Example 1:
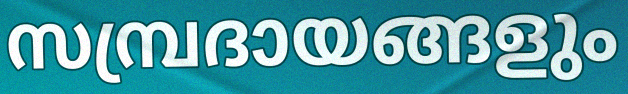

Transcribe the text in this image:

സമ്പ്രദായങ്ങളും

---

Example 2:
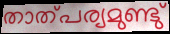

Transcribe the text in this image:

താത്പര്യമുണ്ടു്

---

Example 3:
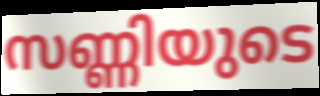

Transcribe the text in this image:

സണ്ണിയുടെ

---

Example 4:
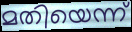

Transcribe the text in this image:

മതിയെന്ന്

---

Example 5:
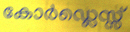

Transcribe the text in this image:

കോർഡ്ലെസ്സ്